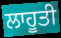
ਲਾਹੂਤੀ